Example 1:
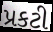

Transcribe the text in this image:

પ્રકટી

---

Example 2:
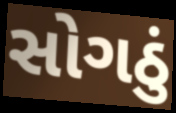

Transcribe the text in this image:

સોગઠું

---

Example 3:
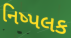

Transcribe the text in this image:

નિષ્પલક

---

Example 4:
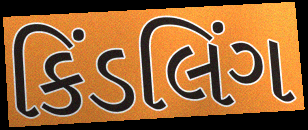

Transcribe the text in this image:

કિંડલિંગ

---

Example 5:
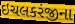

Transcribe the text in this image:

ઇચલકરંજીના